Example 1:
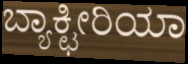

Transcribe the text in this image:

ಬ್ಯಾಕ್ಟೀರಿಯಾ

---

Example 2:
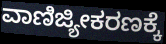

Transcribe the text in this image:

ವಾಣಿಜ್ಯೀಕರಣಕ್ಕೆ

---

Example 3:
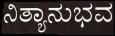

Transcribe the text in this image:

ನಿತ್ಯಾನುಭವ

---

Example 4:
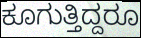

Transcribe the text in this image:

ಕೂಗುತ್ತಿದ್ದರೂ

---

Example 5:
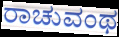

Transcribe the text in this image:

ರಾಚುವಂಥ